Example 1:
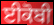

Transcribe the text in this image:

ਈਕੋਬੀ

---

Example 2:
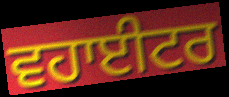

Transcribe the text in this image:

ਵਹਾਈਟਰ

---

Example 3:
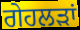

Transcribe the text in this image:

ਗੇਹਲੜਾਂ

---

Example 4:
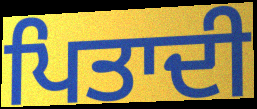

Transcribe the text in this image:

ਪਿਤਾਦੀ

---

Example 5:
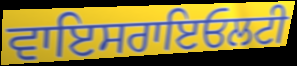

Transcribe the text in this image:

ਵਾਇਸਰਾਇਓਲਟੀ